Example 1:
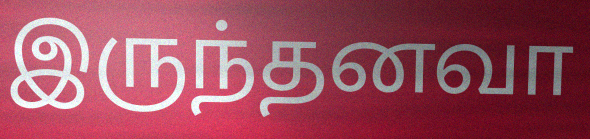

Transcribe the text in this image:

இருந்தனவா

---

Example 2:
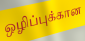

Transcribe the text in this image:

ஒழிப்புக்கான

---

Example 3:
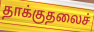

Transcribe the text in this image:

தாக்குதலைச்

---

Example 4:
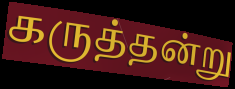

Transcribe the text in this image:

கருத்தன்று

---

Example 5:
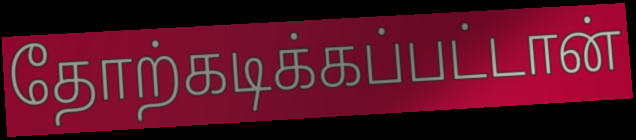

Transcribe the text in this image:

தோற்கடிக்கப்பட்டான்